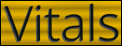
Vitals